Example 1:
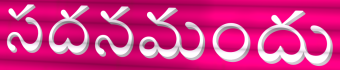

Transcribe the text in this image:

సదనమందు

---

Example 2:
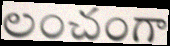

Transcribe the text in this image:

లంచంగా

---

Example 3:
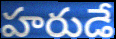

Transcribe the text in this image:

హరుడే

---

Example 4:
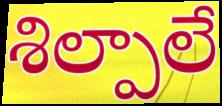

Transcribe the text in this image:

శిల్పాలే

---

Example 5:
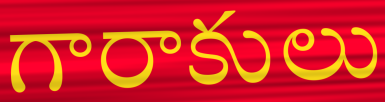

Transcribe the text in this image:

గారాకులు